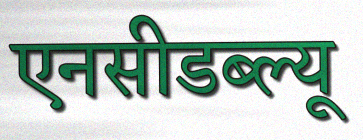
एनसीडब्ल्यू